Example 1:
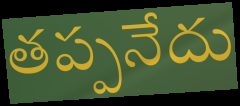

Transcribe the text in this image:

తప్పనేదు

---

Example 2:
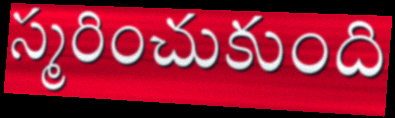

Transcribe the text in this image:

స్మరించుకుంది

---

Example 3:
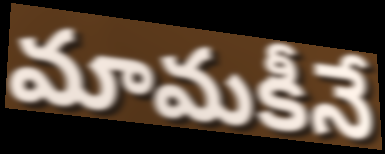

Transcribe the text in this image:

మామకీనే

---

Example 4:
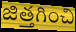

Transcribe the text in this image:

జిత్తగించి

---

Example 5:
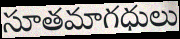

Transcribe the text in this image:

సూతమాగధులు